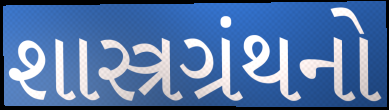
શાસ્ત્રગ્રંથનો